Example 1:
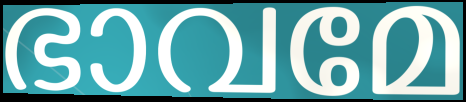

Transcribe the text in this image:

ഭാവമേ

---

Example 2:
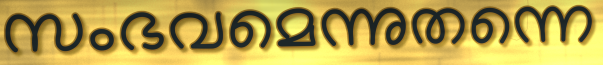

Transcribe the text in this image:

സംഭവമെന്നുതന്നെ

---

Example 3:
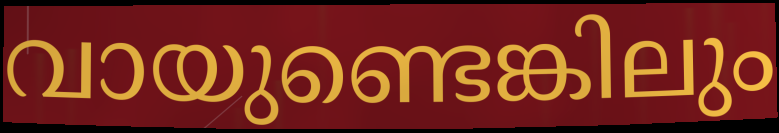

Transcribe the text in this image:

വായുണ്ടെങ്കിലും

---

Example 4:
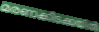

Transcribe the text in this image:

മരണക്കിടക്കയിൽ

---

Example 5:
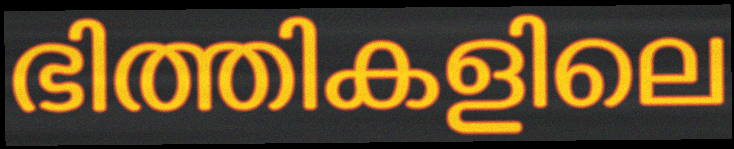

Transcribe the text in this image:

ഭിത്തികളിലെ